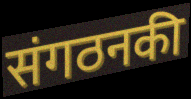
संगठनकी